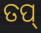
ତପ୍